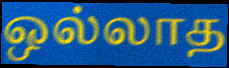
ஒல்லாத